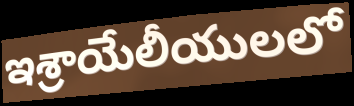
ఇశ్రాయేలీయులలో